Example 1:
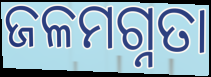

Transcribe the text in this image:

ଜଳମଗ୍ନତା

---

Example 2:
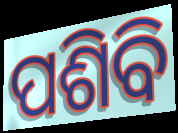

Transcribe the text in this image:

ପଶିବି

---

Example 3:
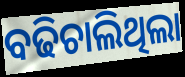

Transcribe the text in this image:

ବଢିଚାଲିଥିଲା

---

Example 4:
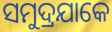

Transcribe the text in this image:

ସମୁଦ୍ରଯାକେ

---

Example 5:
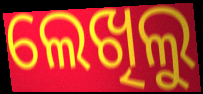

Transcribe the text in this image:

ଲେଖିଲୁ